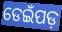
ଡେଇଁପଡ଼